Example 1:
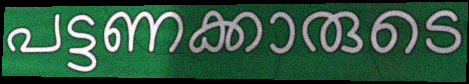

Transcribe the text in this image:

പട്ടണക്കാരുടെ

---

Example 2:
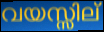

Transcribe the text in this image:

വയസ്സില്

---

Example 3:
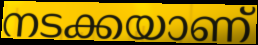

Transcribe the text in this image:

നടക്കയാണ്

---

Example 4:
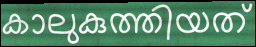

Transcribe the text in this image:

കാലുകുത്തിയത്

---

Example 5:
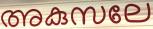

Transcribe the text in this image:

അകുസലേ